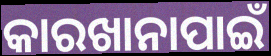
କାରଖାନାପାଇଁ